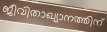
ജീവിതാഖ്യാനത്തിന്